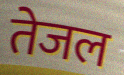
तेजल